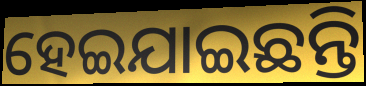
ହେଇଯାଇଛନ୍ତି